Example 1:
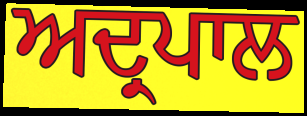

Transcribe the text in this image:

ਅਦ੍ਰਪਾਲ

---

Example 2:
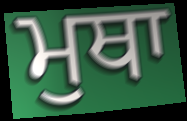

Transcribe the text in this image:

ਮੁਥਾ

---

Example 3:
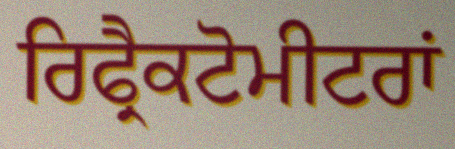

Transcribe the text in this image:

ਰਿਫ੍ਰੈਕਟੋਮੀਟਰਾਂ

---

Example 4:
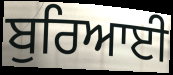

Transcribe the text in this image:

ਬੁਰਿਆਈ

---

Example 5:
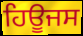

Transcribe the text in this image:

ਹਿਊਜਸ